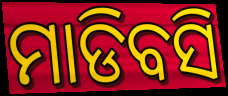
ମାଡିବସି